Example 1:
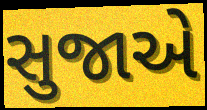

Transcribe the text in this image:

સુજાએ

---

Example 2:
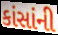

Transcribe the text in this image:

કાંસાંની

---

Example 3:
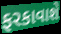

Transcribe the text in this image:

ફરકાવાશે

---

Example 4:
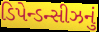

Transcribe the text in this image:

ડિપેન્ડન્સીઝનું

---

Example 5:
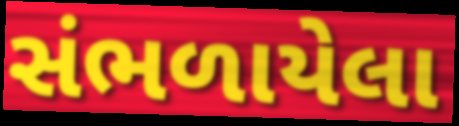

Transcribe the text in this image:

સંભળાયેલા